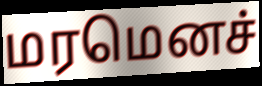
மரமெனச்